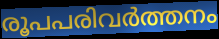
രൂപപരിവർത്തനം